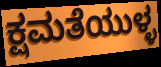
ಕ್ಷಮತೆಯುಳ್ಳ